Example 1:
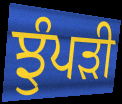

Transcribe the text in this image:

ਝੁੰਪੜੀ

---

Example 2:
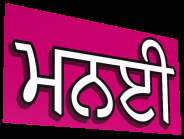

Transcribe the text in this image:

ਮਨਈ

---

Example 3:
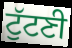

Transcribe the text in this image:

ਟੁੱਟਣੀ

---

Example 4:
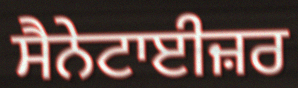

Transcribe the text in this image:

ਸੈਨੇਟਾਈਜ਼ਰ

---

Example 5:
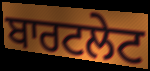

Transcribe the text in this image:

ਬਾਰਟਲੇਟ